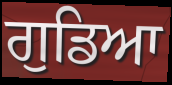
ਗੁਡਿਆ